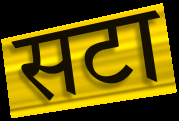
सटा